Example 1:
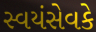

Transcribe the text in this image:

સ્વયંસેવકે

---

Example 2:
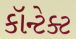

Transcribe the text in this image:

કૉન્ટેક્ટ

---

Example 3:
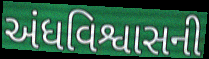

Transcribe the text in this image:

અંધવિશ્વાસની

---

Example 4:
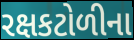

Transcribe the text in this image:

રક્ષકટોળીના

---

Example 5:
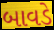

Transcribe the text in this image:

બાવડે